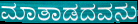
ಮಾತಾಡದವನು